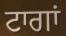
ਟਾਗਾਂ